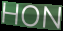
HON